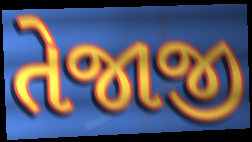
તેજાજી